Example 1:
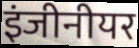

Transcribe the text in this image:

इंजीनीयर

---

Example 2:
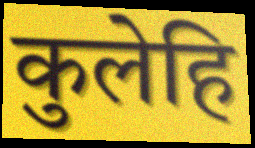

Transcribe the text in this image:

कुलेहि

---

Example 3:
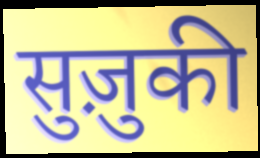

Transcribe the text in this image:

सुज़ुकी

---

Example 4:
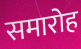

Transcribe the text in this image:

समारोह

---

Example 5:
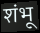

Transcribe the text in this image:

शंभू